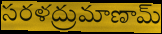
సరళద్రుమాణామ్